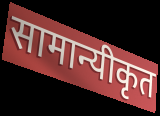
सामान्यीकृत